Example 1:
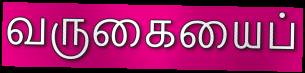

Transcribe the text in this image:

வருகையைப்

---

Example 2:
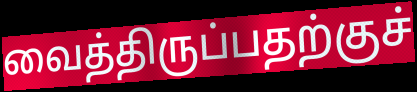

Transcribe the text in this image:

வைத்திருப்பதற்குச்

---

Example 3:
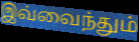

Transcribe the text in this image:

இவ்வைந்தும்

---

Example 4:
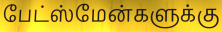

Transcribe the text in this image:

பேட்ஸ்மேன்களுக்கு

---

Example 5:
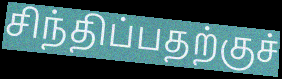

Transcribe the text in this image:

சிந்திப்பதற்குச்